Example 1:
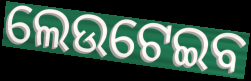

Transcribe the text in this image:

ଲେଉଟେଇବ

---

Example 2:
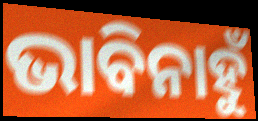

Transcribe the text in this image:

ଭାବିନାହୁଁ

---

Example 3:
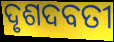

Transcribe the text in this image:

ଦୃଶଦବତୀ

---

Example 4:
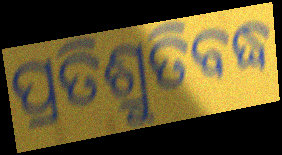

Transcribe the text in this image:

ପ୍ରତିଶ୍ରୁତିବଦ୍ଧ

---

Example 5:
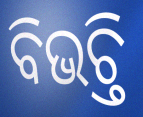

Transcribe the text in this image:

ବିଭଚ୍ତି